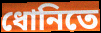
ধোনিতে